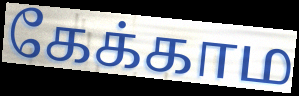
கேக்காம